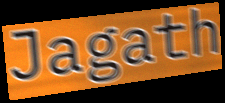
Jagath